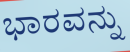
ಭಾರವನ್ನು